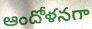
ఆందోళనగా